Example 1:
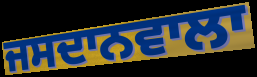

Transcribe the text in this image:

ਜਸਦਾਨਵਾਲਾ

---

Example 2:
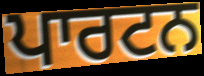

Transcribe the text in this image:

ਪਾਰਟਨ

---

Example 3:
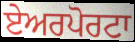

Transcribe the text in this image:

ਏਅਰਪੋਰਟਾ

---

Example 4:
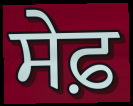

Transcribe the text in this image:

ਸੇਫ਼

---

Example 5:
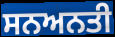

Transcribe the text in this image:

ਸਨਅਨਤੀ